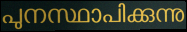
പുനസ്ഥാപിക്കുന്നു